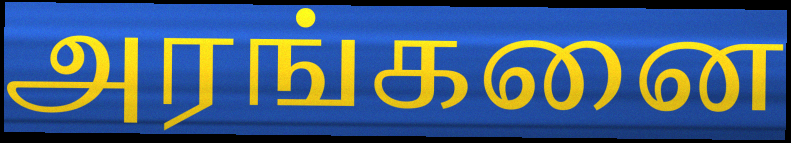
அரங்கனை